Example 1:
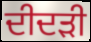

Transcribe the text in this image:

ਦੀਦੜੀ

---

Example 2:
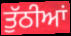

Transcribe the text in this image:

ਤੁੱਠੀਆਂ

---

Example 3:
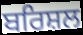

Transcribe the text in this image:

ਬਰਿਸ਼ਲ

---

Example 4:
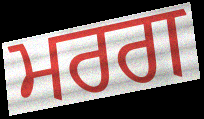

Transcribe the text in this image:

ਮਰਗ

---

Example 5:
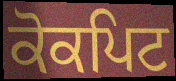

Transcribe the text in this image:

ਕੋਕਪਿਟ